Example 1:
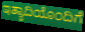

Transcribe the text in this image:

ಇತ್ಯಾದಿಯೊಂದಿಗೆ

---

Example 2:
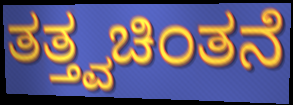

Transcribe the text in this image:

ತತ್ತ್ವಚಿಂತನೆ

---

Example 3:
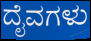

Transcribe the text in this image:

ದೈವಗಳು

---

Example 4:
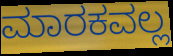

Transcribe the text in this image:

ಮಾರಕವಲ್ಲ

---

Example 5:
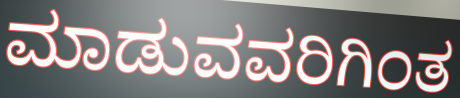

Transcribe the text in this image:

ಮಾಡುವವರಿಗಿಂತ